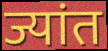
ज्यांत